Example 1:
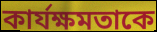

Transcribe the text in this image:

কার্যক্ষমতাকে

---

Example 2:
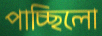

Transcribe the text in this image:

পাচ্ছিলো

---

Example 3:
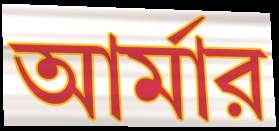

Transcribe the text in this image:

আর্মার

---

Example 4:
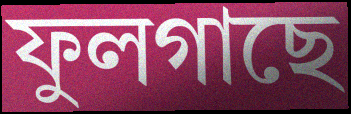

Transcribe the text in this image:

ফুলগাছে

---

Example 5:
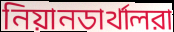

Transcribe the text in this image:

নিয়ানডার্থালরা